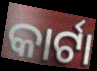
କାର୍ଟା